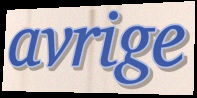
avrige